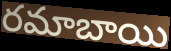
రమాబాయి